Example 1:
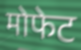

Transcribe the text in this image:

मोफेट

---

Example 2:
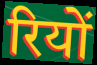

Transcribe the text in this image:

रियों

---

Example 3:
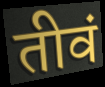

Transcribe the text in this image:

तीवं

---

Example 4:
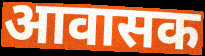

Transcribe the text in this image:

आवासक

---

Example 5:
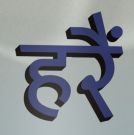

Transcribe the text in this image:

हरैं